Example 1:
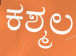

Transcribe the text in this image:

ಕಶ್ಮಲ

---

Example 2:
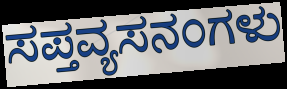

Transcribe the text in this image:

ಸಪ್ತವ್ಯಸನಂಗಳು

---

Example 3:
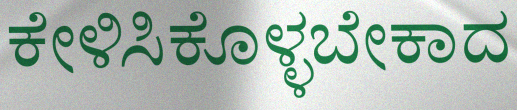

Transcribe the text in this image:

ಕೇಳಿಸಿಕೊಳ್ಳಬೇಕಾದ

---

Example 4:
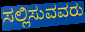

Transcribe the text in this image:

ಸಲ್ಲಿಸುವವರು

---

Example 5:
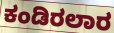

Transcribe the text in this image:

ಕಂಡಿರಲಾರ